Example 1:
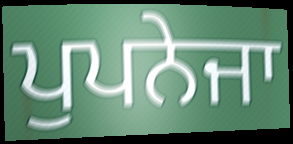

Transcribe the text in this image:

ਪੁਪਨੇਜਾ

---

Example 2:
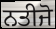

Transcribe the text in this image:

ਨਤੀਜੋ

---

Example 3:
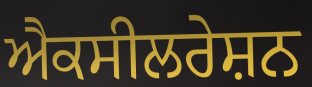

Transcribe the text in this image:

ਐਕਸੀਲਰੇਸ਼ਨ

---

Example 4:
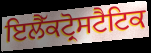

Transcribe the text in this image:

ਇਲੈੱਕਟ੍ਰੋਸਟੈਟਿਕ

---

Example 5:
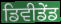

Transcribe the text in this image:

ਡਿਵੀਡੇਂਡ